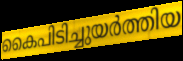
കൈപിടിച്ചുയർത്തിയ